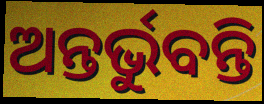
ଅନ୍ତର୍ଭୁବନ୍ତି